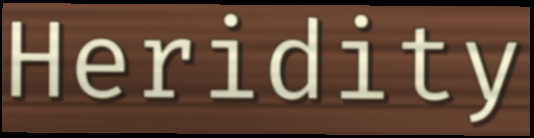
Heridity